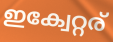
ഇക്വേറ്റര്